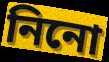
নিনো